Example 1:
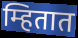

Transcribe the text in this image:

म्हितात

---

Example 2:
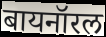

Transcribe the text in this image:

बायनॉरल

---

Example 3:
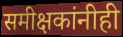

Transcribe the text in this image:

समीक्षकांनीही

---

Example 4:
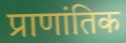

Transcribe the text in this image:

प्राणांतिक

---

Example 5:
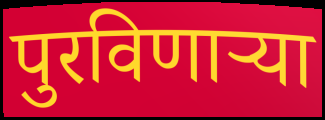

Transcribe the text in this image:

पुरविणार्‍या